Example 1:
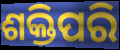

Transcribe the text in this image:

ଶକ୍ତିପରି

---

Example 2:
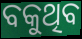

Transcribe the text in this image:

ବକୁଥିବ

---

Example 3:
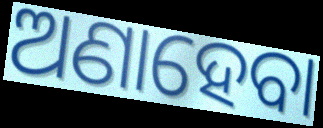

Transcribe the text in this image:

ଅଣାହେବା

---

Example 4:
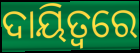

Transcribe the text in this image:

ଦାୟିତ୍ବରେ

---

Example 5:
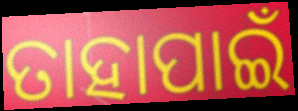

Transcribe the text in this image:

ତାହାପାଇଁ